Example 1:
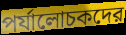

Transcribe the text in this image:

পর্যালোচকদের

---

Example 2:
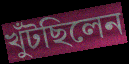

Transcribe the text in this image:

খুঁটছিলেন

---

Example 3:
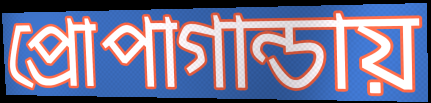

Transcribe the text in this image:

প্রোপাগান্ডায়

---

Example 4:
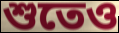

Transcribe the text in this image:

শুতেও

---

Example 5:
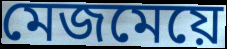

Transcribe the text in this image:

মেজমেয়ে